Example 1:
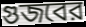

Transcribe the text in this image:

গুজবের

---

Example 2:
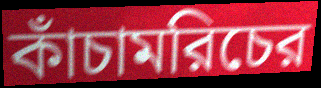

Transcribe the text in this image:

কাঁচামরিচের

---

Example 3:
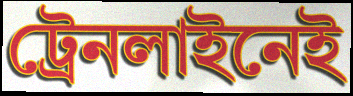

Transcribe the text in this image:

ট্রেনলাইনেই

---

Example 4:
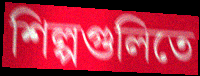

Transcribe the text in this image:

শিল্পগুলিতে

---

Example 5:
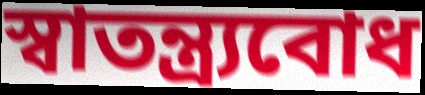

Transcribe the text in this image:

স্বাতন্ত্র্যবোধ